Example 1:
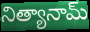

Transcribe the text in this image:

నిత్యానామ్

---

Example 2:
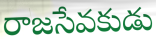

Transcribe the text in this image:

రాజసేవకుడు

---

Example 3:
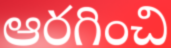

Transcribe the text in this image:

ఆరగించి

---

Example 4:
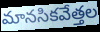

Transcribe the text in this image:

మానసికవేత్తల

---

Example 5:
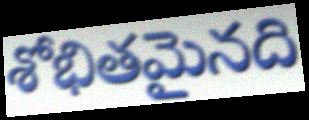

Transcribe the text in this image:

శోభితమైనది